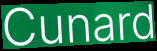
Cunard